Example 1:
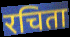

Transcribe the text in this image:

रचिता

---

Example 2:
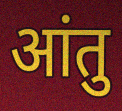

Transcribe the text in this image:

आंतु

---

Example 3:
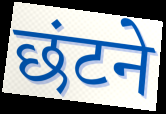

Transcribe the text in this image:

छंटने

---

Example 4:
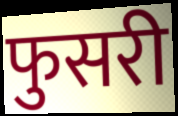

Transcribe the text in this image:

फुसरी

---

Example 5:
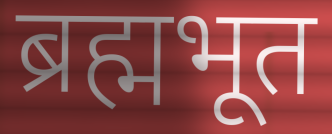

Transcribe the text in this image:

ब्रह्मभूत